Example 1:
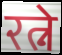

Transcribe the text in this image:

रत्ने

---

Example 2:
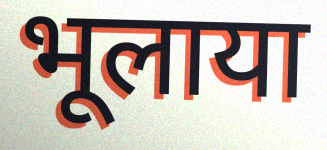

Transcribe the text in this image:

भूलाया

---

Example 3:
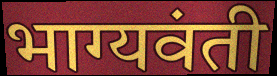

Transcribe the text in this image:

भाग्यवंती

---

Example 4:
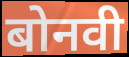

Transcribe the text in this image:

बोनवी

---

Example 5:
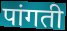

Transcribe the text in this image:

पांगती